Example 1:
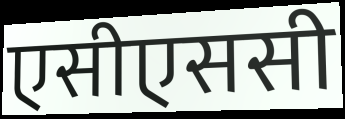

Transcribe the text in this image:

एसीएससी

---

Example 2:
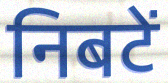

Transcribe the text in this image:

निबटें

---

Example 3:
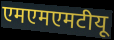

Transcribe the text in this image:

एमएमएमटीयू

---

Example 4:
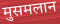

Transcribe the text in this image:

मुसमलान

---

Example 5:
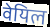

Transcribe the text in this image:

वेयिल